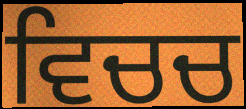
ਵਿਚਚ